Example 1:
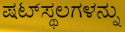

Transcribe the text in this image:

ಷಟ್‌ಸ್ಥಲಗಳನ್ನು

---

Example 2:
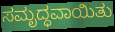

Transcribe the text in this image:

ಸಮೃದ್ಧವಾಯಿತು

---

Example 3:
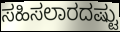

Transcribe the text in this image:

ಸಹಿಸಲಾರದಷ್ಟು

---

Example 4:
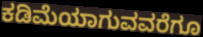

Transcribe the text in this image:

ಕಡಿಮೆಯಾಗುವವರೆಗೂ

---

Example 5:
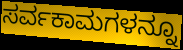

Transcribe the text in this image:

ಸರ್ವಕಾಮಗಳನ್ನೂ